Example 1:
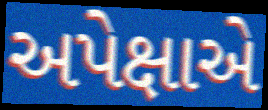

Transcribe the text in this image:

અપેક્ષાએ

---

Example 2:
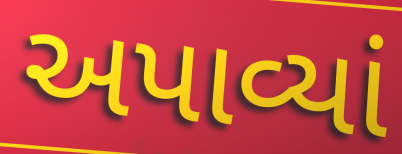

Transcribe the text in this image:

અપાવ્યાં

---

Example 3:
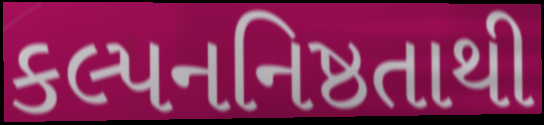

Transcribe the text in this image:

કલ્પનનિષ્ઠતાથી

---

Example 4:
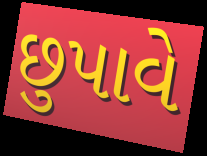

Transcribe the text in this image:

છુપાવે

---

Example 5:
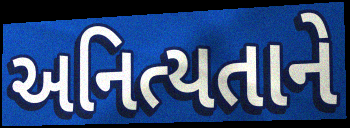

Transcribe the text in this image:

અનિત્યતાને